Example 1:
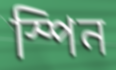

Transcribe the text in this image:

স্পিন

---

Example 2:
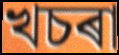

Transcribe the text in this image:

খচৰা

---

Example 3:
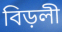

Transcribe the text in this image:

বিড়লী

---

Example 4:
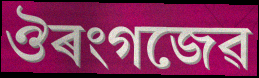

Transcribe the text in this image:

ঔৰংগজেৱ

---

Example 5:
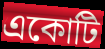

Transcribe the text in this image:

একোটি